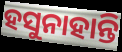
ହସୁନାହାନ୍ତି